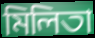
মিলিতা